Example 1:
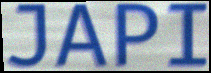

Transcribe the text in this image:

JAPI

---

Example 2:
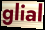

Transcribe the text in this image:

glial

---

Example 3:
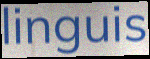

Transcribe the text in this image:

linguis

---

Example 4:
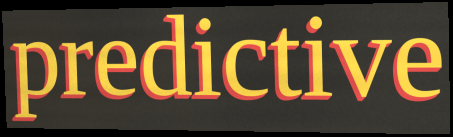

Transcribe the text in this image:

predictive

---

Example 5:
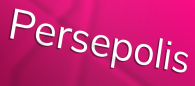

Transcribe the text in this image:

Persepolis